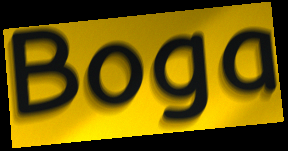
Boga